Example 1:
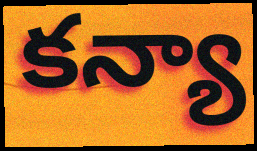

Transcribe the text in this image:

కన్యా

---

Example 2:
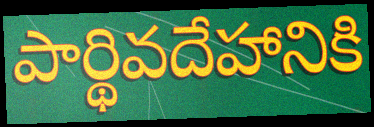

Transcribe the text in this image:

పార్థివదేహానికి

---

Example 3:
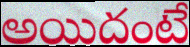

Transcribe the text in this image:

అయిదంటే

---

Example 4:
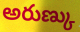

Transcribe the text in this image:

అరుణ్కు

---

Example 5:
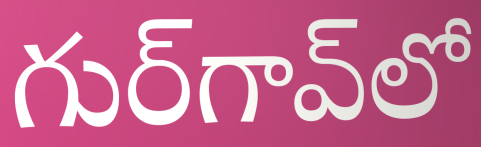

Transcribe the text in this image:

గుర్‌గావ్‌లో